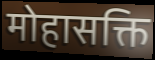
मोहासक्ति